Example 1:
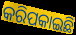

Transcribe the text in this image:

କରିପକାଇଛି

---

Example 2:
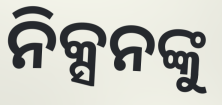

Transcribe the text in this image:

ନିକ୍ସନଙ୍କୁ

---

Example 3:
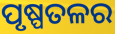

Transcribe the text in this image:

ପୃଷ୍ପତଳର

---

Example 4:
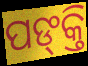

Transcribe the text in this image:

ପଙ୍‍କ୍ତି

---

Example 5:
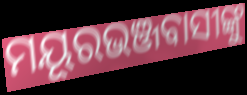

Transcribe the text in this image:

ମୟୂରଭଞ୍ଜବାସୀଙ୍କୁ